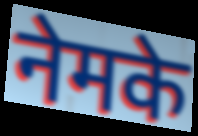
नेमके